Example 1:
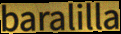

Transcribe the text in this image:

baralilla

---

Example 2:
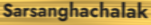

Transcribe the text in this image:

Sarsanghachalak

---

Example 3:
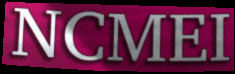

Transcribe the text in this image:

NCMEI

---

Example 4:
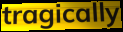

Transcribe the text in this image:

tragically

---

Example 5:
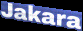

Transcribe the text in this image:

Jakara